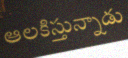
ఆలకిస్తున్నాడు